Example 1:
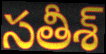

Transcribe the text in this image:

సతీశ్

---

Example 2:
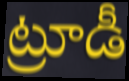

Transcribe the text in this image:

ట్రూడీ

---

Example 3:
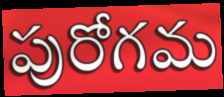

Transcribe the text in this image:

పురోగమ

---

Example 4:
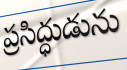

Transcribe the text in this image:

ప్రసిద్ధుడును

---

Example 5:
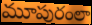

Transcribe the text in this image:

మూపురంలా